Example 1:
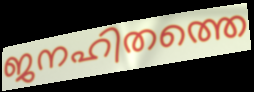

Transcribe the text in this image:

ജനഹിതത്തെ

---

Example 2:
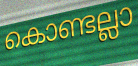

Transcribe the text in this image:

കൊണ്ടല്ലാ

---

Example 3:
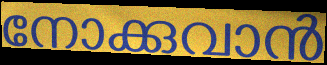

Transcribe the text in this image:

നോക്കുവാൻ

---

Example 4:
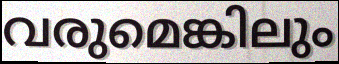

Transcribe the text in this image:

വരുമെങ്കിലും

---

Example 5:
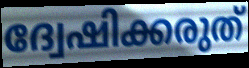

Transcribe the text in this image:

ദ്വേഷിക്കരുത്